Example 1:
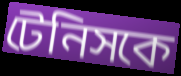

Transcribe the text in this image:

টেনিসকে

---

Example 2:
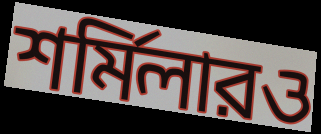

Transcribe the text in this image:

শর্মিলারও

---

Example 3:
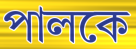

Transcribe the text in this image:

পালকে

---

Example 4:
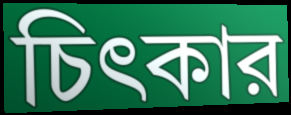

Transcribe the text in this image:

চিৎকার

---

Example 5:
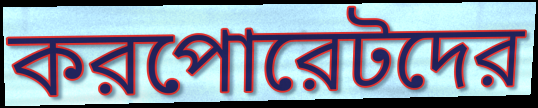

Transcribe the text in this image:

করপোরেটদের